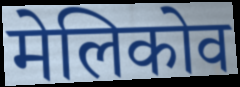
मेलिकोव